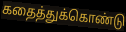
கதைத்துக்கொண்டு